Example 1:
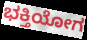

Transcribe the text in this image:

ಭಕ್ತಿಯೋಗ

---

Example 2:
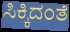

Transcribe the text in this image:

ಸಿಕ್ಕಿದಂತೆ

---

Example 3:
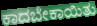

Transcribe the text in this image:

ಕಾದಬೇಕಾಯಿತು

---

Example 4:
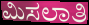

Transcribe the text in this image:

ಮಿಸಲಾತಿ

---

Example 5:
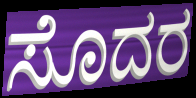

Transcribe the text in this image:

ಸೊದರ